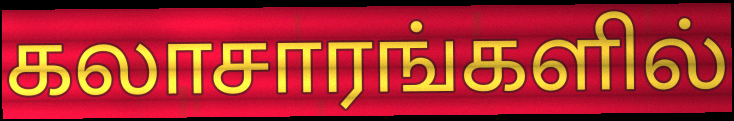
கலாசாரங்களில்